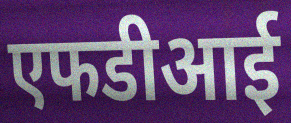
एफडीआई